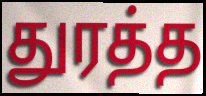
துரத்த